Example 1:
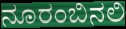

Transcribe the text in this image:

ನೂರಂಬಿನಲಿ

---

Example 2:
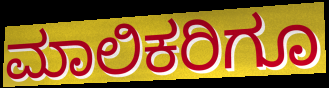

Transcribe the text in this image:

ಮಾಲಿಕರಿಗೂ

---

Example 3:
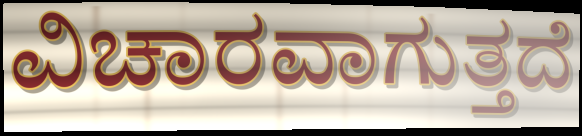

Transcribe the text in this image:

ವಿಚಾರವಾಗುತ್ತದೆ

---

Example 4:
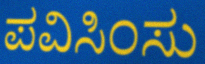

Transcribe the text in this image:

ಪವಿಸಿಂಸು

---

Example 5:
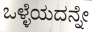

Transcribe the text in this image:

ಒಳ್ಳೆಯದನ್ನೇ